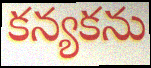
కన్యకను